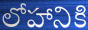
లోహానికి